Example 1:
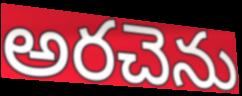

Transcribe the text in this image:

అరచెను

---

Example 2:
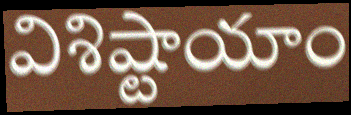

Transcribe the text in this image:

విశిష్టాయాం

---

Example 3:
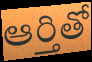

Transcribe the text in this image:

ఆర్తితో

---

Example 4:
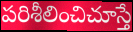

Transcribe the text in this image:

పరిశీలించిచూస్తే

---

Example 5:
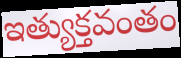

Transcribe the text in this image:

ఇత్యుక్తవంతం